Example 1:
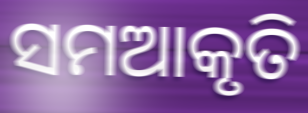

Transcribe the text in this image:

ସମଆକୃତି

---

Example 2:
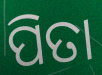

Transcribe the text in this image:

ପିତା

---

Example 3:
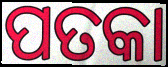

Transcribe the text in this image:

ପତକା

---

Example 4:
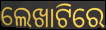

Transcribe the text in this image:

ଲେଖାଟିରେ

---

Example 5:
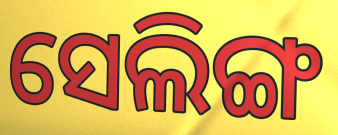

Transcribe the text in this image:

ସେଲିଙ୍ଗ